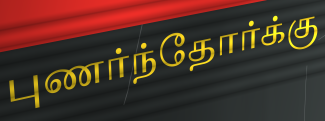
புணர்ந்தோர்க்கு